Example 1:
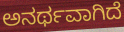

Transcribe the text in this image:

ಅನರ್ಥವಾಗಿದೆ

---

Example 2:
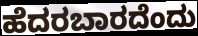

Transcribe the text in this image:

ಹೆದರಬಾರದೆಂದು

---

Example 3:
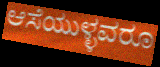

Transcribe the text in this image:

ಆಸೆಯುಳ್ಳವರೂ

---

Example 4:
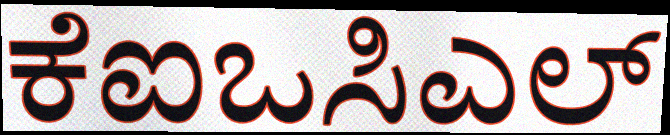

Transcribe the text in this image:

ಕೆಐಒಸಿಎಲ್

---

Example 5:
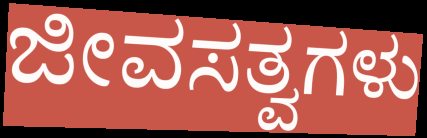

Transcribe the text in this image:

ಜೀವಸತ್ವಗಳು